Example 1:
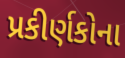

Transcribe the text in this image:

પ્રકીર્ણકોના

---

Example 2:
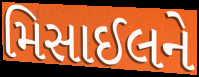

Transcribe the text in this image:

મિસાઈલને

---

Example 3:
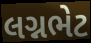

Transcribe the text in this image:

લગ્નભેટ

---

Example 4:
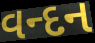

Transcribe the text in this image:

વન્દન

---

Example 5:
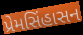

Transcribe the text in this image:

પ્રેમસિંહાસન